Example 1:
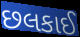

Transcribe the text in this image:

છલકાઈ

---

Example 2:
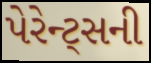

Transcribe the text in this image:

પેરેન્ટ્સની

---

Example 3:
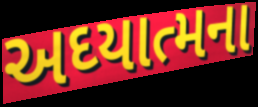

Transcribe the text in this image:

અઘ્યાત્મના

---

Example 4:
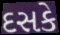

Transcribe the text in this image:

દસકે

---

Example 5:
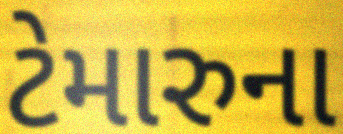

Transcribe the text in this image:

ટેમારુના